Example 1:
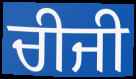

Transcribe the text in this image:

ਚੀਜੀ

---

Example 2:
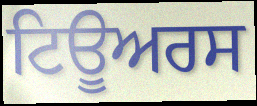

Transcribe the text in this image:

ਟਿਊਅਰਸ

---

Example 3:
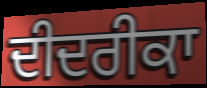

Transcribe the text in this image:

ਦੀਦਰੀਕਾ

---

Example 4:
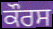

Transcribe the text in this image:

ਕੌਰਸ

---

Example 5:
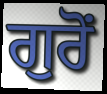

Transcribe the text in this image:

ਗੁਰੋਂ